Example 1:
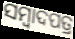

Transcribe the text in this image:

ସମ୍ବାଦପତ୍ର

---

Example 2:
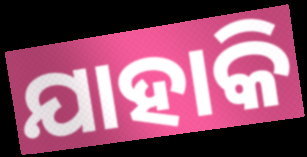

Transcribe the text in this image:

ଯାହାକି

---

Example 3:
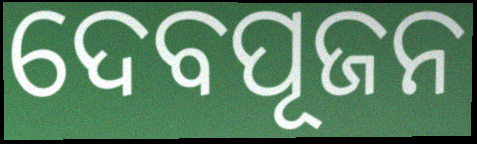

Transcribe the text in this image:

ଦେବପୂଜନ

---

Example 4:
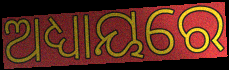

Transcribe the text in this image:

ଅଧ୍ୟାୟରେ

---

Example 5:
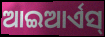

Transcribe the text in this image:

ଆଇଆର୍ଏସ୍